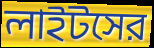
লাইটসের